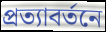
প্রত্যাবর্তনে